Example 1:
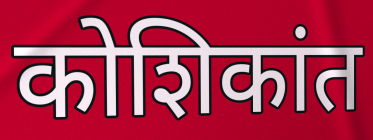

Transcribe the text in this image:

कोशिकांत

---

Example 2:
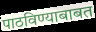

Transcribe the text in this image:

पाठविण्याबाबत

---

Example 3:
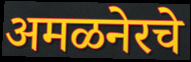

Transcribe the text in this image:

अमळनेरचे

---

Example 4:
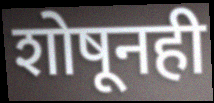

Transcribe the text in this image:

शोषूनही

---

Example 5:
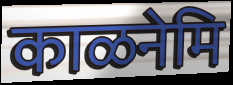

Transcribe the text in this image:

काळनेमि